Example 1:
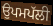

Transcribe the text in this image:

ਉਪਮਪੱਲੀ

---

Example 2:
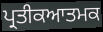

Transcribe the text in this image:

ਪ੍ਰਤੀਕਆਤਮਕ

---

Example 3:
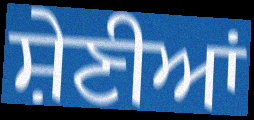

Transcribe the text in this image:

ਸ਼ੇਣੀਆਂ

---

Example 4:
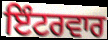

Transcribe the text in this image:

ਇੰਟਰਵਾਰ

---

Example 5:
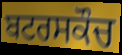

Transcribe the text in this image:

ਬਟਰਸਕੌਚ